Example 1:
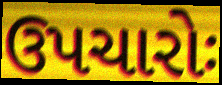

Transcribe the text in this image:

ઉપચારોઃ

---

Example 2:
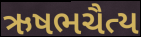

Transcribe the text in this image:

ઋષભચૈત્ય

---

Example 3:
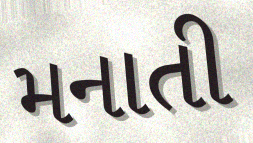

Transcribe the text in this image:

મનાતી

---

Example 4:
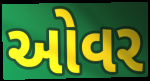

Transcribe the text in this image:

ઓવર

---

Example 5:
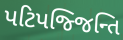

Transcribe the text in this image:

પટિપજ્જિન્તિ